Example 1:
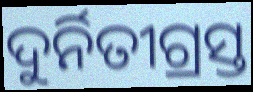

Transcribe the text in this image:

ଦୁର୍ନିତୀଗ୍ରସ୍ତ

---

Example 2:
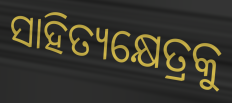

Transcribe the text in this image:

ସାହିତ୍ୟକ୍ଷେତ୍ରକୁ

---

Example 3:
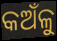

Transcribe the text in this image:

କଅଁଳୁ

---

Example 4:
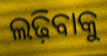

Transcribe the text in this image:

ଲଢ଼ିବାକୁ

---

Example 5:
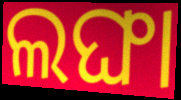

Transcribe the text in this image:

ଲଙ୍ଘା